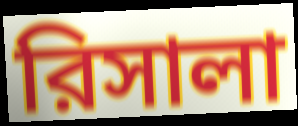
রিসালা